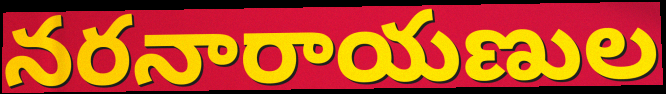
నరనారాయణుల